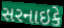
સરનાઇકે